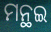
ମନ୍ଥଇ